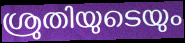
ശ്രുതിയുടെയും